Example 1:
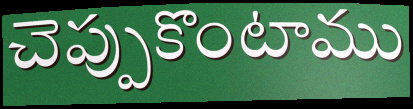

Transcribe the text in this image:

చెప్పుకొంటాము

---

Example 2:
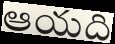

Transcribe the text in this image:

ఆయది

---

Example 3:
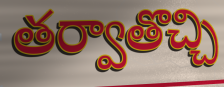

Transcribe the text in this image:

తర్వాతొచ్చి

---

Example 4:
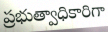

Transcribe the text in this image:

ప్రభుత్వాధికారిగా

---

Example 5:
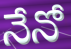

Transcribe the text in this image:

నేనో